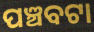
ପଞ୍ଚବଟା